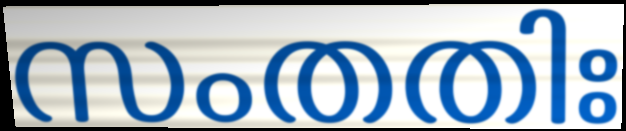
സംതതിഃ